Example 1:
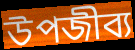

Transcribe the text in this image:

উপজীব্য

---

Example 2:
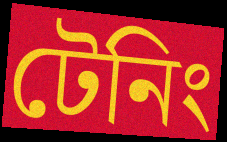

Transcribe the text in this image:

টেনিং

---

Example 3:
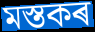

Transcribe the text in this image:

মস্তকৰ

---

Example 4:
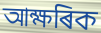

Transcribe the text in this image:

আক্ষৰিক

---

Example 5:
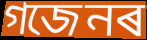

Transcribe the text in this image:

গজেনৰ